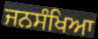
ਜਨਸੰਖਿਆ